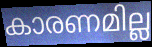
കാരണമില്ല